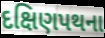
દક્ષિણપથના